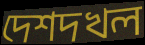
দেশদখল